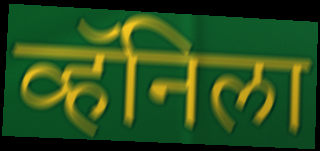
व्हॅनिला